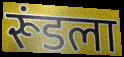
रूंडला